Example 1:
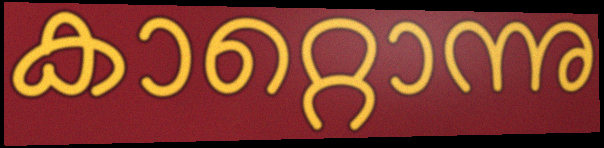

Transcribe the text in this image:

കാറ്റൊന്നു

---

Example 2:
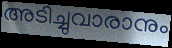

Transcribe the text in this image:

അടിച്ചുവാരാനും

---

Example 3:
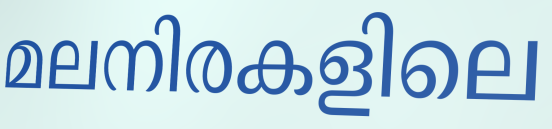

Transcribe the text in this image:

മലനിരകളിലെ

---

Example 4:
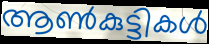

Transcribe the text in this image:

ആൺകുട്ടികൾ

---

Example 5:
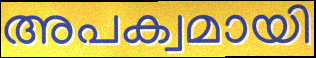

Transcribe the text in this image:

അപക്വമായി